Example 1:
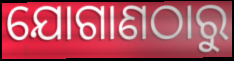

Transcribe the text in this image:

ଯୋଗାଣଠାରୁ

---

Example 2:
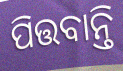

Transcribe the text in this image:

ପିତ୍ତବାନ୍ତି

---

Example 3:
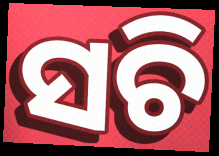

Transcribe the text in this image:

ସଚି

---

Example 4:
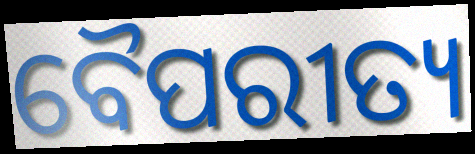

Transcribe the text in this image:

ବୈପରୀତ୍ୟ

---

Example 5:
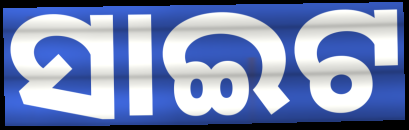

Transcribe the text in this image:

ସାଇଟ